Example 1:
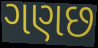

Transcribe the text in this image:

ગણછ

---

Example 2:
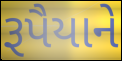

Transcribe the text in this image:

રૂપૈયાને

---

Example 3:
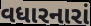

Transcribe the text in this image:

વધારનારાં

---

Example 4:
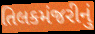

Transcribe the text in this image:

તિલકમંજરીનું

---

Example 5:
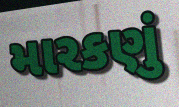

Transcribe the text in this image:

મારકણું